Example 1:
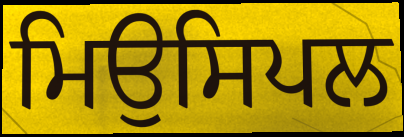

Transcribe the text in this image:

ਮਿਉਸਿਪਲ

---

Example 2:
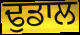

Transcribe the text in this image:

ਢੁਡਾਲ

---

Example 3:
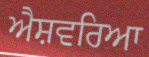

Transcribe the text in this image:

ਐਸ਼ਵਰਿਆ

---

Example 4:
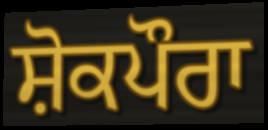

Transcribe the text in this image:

ਸ਼ੋਕਪੌਰਾ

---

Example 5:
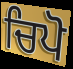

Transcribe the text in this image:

ਚਿਪੋ